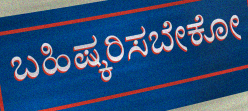
ಬಹಿಷ್ಕರಿಸಬೇಕೋ